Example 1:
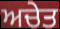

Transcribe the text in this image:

ਅਚੇਤ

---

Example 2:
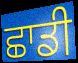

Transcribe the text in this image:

ਛਾਡੀ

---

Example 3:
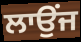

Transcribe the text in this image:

ਲਾਉਂਜ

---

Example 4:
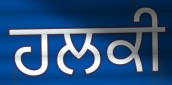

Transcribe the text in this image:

ਹਲਕੀ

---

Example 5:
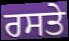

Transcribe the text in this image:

ਰਸਤੇ